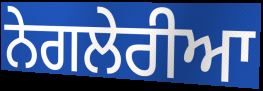
ਨੇਗਲੇਰੀਆ